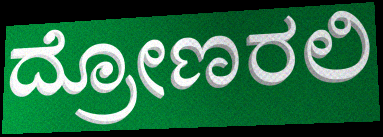
ದ್ರೋಣರಲಿ